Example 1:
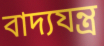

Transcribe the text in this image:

বাদ্যযন্ত্ৰ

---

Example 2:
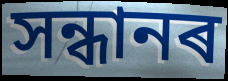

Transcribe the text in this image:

সন্ধানৰ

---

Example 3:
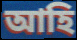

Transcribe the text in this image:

আহি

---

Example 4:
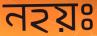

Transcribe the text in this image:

নহয়ঃ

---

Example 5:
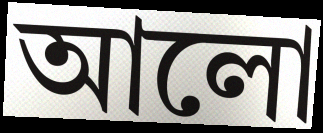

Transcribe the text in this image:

আলো